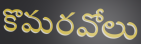
కొమరవోలు